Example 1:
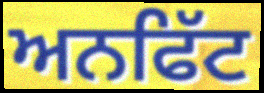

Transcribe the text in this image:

ਅਨਫਿੱਟ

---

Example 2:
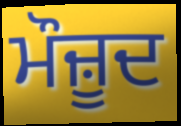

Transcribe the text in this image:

ਮੌਜ਼ੂਦ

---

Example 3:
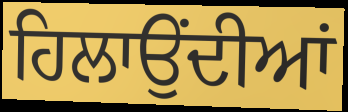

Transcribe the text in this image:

ਹਿਲਾਉਂਦੀਆਂ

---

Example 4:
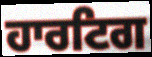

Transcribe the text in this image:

ਹਾਰਟਿਗ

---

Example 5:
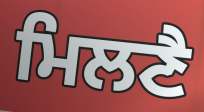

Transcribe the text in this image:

ਮਿਲਣੈ